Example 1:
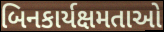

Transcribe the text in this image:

બિનકાર્યક્ષમતાઓ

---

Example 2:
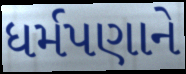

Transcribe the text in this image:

ધર્મપણાને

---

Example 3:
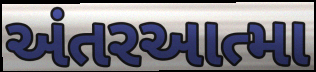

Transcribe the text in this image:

અંતરઆત્મા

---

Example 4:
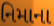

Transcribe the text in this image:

નિમાના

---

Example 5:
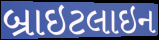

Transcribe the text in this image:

બ્રાઇટલાઇન